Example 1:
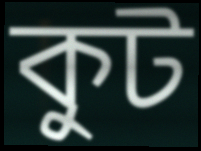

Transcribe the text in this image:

কুট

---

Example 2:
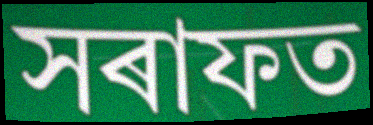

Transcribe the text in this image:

সৰাফত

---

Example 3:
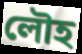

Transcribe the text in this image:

লৌহ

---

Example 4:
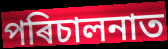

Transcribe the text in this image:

পৰিচালনাত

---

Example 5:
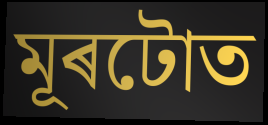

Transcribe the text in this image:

মূৰটোত